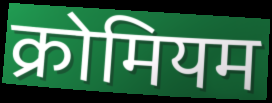
क्रोमियम